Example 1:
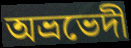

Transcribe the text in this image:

অভ্রভেদী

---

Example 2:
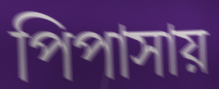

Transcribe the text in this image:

পিপাসায়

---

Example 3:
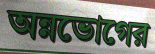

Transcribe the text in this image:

অন্নভোগের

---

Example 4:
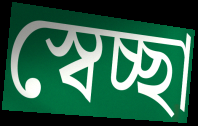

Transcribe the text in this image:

স্বেচ্ছা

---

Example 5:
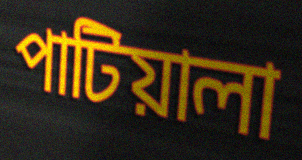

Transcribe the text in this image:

পাটিয়ালা